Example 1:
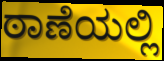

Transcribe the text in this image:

ಠಾಣೆಯಲ್ಲಿ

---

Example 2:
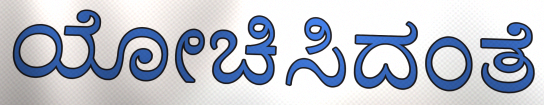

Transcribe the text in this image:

ಯೋಚಿಸಿದಂತೆ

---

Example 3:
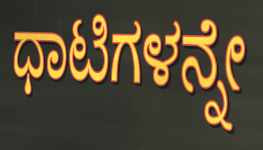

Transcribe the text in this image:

ಧಾಟಿಗಳನ್ನೇ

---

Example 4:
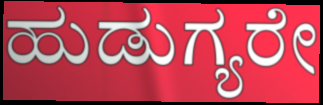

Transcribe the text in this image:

ಹುಡುಗ್ಯರೇ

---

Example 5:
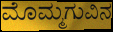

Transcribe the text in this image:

ಮೊಮ್ಮಗುವಿನ